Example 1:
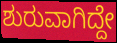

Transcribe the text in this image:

ಶುರುವಾಗಿದ್ದೇ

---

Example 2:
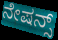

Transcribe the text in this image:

ನೇಷನ್ಸ್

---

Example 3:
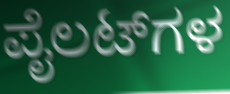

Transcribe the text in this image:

ಪೈಲಟ್‌ಗಳ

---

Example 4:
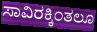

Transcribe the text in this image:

ಸಾವಿರಕ್ಕಿಂತಲೂ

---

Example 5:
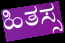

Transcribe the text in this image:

ಹಿತಸ್ಸ